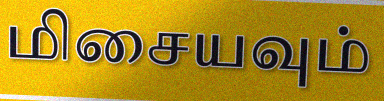
மிசையவும்